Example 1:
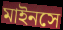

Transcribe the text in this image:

মাইনসে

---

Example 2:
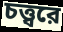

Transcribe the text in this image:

চত্ত্বরে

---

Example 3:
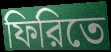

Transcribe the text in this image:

ফিরিতে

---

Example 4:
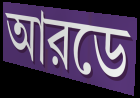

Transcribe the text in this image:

আরডে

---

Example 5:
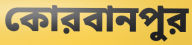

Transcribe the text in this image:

কোরবানপুর